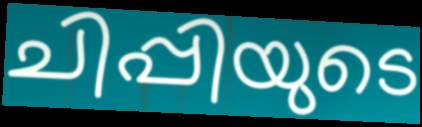
ചിപ്പിയുടെ